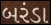
બરંડા